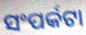
ସଂପର୍କଟା